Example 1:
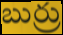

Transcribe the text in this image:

బుర్రు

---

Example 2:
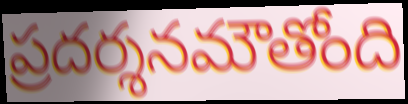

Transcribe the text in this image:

ప్రదర్శనమౌతోంది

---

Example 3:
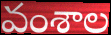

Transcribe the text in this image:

వంశాల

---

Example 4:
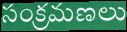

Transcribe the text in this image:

సంక్రమణలు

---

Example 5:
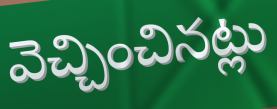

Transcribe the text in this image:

వెచ్చించినట్లు